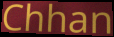
Chhan